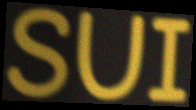
SUI